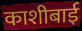
काशीबाई